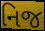
નિજ